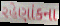
રહેણાંકના